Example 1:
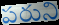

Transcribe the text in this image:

పరుని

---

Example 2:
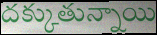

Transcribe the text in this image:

దక్కుతున్నాయి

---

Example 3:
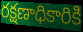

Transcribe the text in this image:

రక్షణాధికారికి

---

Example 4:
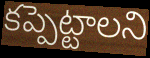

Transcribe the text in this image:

కప్పెట్టాలని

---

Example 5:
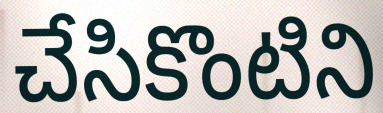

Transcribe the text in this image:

చేసికొంటిని